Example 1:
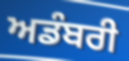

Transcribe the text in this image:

ਅਡੰਬਰੀ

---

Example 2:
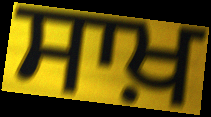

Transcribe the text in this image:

ਸਾਖ਼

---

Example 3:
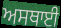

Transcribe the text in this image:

ਅਸਥਾਈ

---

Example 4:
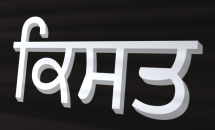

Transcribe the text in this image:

ਕਿਸਤ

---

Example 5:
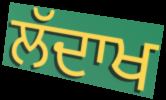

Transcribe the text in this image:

ਲੱਦਾਖ